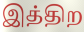
இத்திற